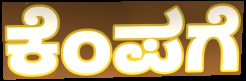
ಕೆಂಪಗೆ